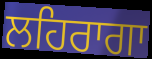
ਲਹਿਰਾਗਾ